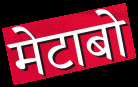
मेटाबो